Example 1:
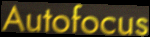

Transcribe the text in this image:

Autofocus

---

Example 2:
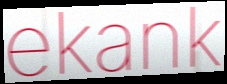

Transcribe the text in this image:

ekank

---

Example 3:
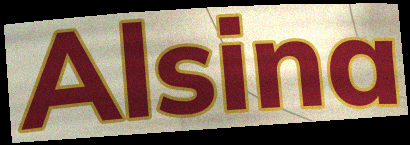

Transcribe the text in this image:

Alsina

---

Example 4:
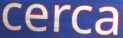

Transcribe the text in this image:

cerca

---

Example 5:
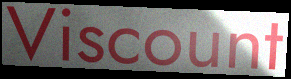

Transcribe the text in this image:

Viscount